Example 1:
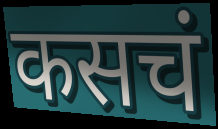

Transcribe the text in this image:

कसचं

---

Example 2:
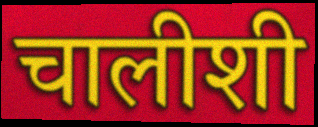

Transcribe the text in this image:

चालीशी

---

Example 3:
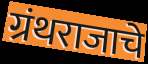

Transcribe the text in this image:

ग्रंथराजाचे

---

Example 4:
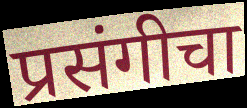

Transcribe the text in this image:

प्रसंगीचा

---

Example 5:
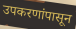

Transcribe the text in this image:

उपकरणांपासून